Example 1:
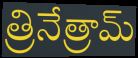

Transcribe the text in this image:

త్రినేత్రామ్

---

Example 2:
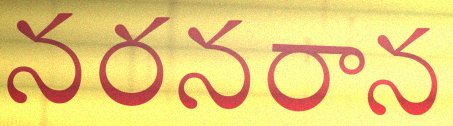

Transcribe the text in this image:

నరనరాన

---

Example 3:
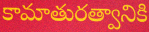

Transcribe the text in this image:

కామాతురత్వానికి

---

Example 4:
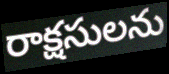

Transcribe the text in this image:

రాక్షసులను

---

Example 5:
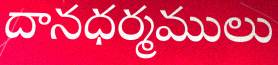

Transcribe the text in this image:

దానధర్మములు